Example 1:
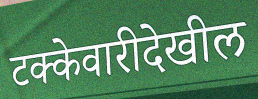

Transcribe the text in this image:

टक्केवारीदेखील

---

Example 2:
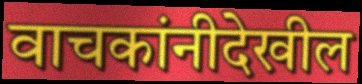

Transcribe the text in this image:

वाचकांनीदेखील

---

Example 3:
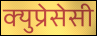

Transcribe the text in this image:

क्युप्रेसेसी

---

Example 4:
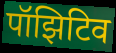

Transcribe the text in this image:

पॉझिटिव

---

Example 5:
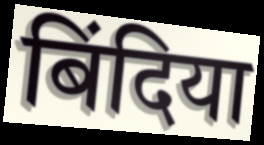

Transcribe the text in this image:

बिंदिया